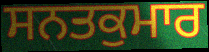
ਸਨਤਕੁਮਾਰ